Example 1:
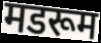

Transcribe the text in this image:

मडरूम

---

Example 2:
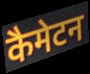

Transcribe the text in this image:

कैमेटन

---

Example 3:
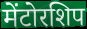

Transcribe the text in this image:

मेंटोरशिप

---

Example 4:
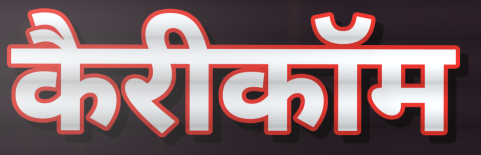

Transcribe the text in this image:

कैरीकॉम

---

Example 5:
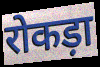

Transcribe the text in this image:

रोकड़ा